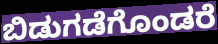
ಬಿಡುಗಡೆಗೊಂಡರೆ